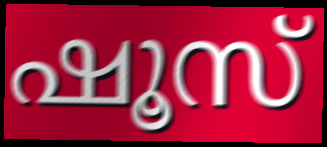
ഷൂസ്